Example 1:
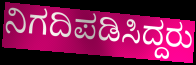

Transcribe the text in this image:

ನಿಗದಿಪಡಿಸಿದ್ದರು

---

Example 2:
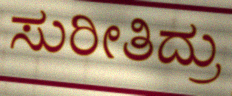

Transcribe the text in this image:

ಸುರೀತಿದ್ರು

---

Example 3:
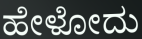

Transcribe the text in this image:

ಹೇಳೋದು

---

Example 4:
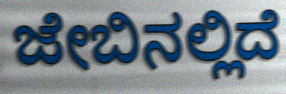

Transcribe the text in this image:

ಜೇಬಿನಲ್ಲಿದೆ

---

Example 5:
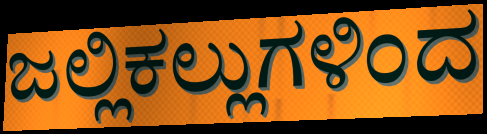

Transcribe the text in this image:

ಜಲ್ಲಿಕಲ್ಲುಗಳಿಂದ